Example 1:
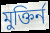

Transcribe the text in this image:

মুক্তির্ন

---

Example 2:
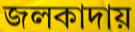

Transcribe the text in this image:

জলকাদায়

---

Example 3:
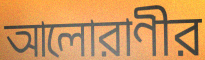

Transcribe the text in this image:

আলোরাণীর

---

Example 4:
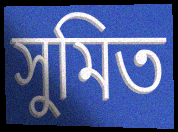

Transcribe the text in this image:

সুমিত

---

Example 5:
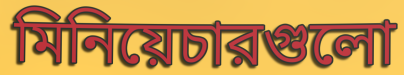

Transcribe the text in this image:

মিনিয়েচারগুলো